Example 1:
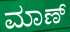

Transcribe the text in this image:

ಮಾಣ್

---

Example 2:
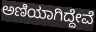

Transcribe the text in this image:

ಅಣಿಯಾಗಿದ್ದೇವೆ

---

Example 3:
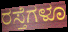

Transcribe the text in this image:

ರಸ್ತೆಗಳೂ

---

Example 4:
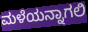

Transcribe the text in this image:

ಮಳೆಯನ್ನಾಗಲಿ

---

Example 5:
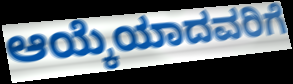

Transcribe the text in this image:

ಆಯ್ಕೆಯಾದವರಿಗೆ